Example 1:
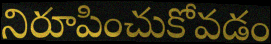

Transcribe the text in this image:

నిరూపించుకోవడం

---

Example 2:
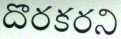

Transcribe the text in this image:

దొరకరని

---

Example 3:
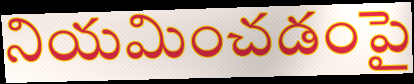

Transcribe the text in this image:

నియమించడంపై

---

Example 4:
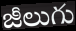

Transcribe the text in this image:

జీలుగు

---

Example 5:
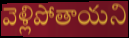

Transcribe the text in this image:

వెళ్లిపోతాయని